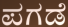
ಪಗಡೆ